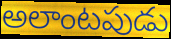
అలాంటపుడు